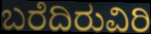
ಬರೆದಿರುವಿರಿ